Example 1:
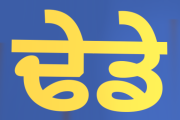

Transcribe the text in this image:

ਢੇਡੇ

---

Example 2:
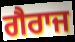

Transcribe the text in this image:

ਗੈਰਾਜ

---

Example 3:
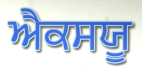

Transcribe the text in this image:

ਐਕਸਯੂ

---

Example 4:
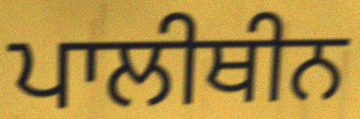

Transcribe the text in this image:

ਪਾਲੀਥੀਨ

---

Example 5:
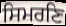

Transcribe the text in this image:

ਸਿਮਰਣਿ